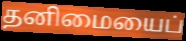
தனிமையைப்